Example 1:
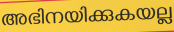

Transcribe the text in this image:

അഭിനയിക്കുകയല്ല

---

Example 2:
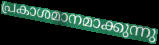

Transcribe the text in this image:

പ്രകാശമാനമാക്കുന്നു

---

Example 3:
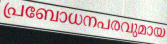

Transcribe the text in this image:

പ്രബോധനപരവുമായ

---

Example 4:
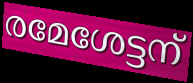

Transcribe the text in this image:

രമേശേട്ടന്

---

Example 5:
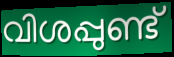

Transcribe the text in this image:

വിശപ്പുണ്ട്